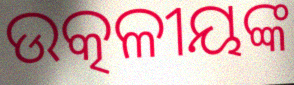
ଉତ୍କଳୀୟଙ୍କ